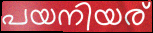
പയനിയര്